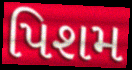
પિશમ